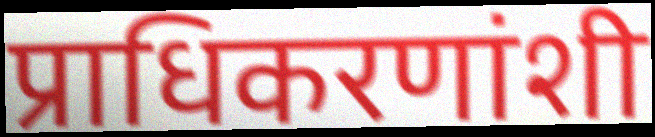
प्राधिकरणांशी